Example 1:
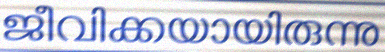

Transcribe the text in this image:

ജീവിക്കയായിരുന്നു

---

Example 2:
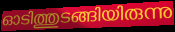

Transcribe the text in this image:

ഓടിത്തുടങ്ങിയിരുന്നു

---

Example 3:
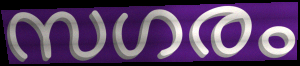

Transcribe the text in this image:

സഗരം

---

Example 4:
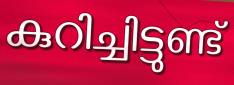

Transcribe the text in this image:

കുറിച്ചിട്ടുണ്ട്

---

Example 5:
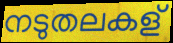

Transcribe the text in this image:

നടുതലകള്